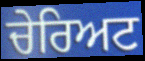
ਚੇਰਿਅਟ